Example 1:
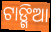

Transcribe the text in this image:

ଟାଙ୍ଗିଆ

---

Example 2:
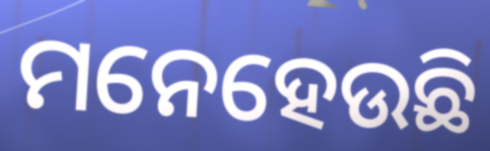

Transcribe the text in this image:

ମନେହେଉଛି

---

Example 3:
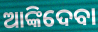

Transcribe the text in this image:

ଆଙ୍କିଦେବା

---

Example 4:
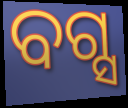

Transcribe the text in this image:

ବଗ୍ସ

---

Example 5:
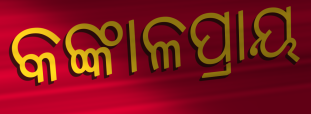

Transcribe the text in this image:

କଙ୍କାଳପ୍ରାୟ